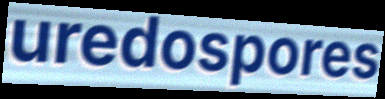
uredospores